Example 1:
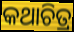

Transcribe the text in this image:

କଥାଚିତ୍ର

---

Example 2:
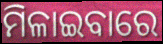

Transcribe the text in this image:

ମିଳାଇବାରେ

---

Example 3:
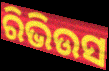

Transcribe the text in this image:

ରିଭିଉସ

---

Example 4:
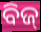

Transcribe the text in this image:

ବିଜ୍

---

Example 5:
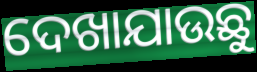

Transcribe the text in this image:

ଦେଖାଯାଉଛୁ